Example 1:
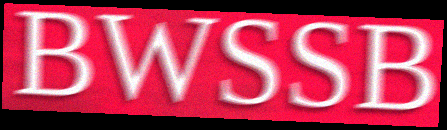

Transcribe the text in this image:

BWSSB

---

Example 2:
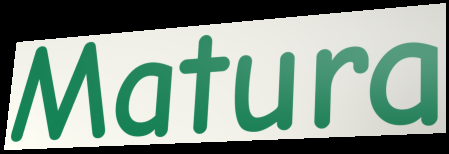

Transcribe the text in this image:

Matura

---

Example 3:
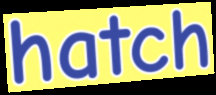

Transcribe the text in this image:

hatch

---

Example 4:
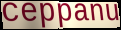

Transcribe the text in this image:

ceppanu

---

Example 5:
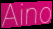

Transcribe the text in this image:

Aino